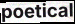
poetical